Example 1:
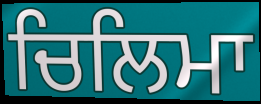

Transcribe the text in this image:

ਚਿਲਿਮਾ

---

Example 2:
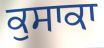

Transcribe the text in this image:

ਕੁਸਾਕਾ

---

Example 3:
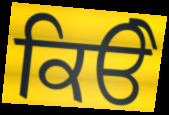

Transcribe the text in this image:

ਕਿੳੇ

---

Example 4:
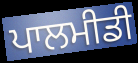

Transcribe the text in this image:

ਪਾਲਮੀਡੀ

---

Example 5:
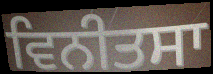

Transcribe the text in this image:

ਵਿਨੀਤਸਾ